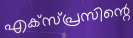
എക്സ്പ്രസിന്റെ